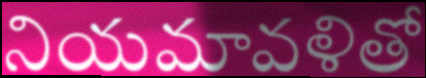
నియమావళితో